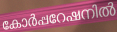
കോർപ്പറേഷനിൽ